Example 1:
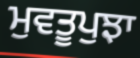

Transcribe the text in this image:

ਮੁਵਤੂਪੁਝਾ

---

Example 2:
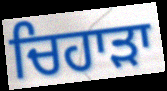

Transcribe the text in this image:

ਚਿਹਾੜਾ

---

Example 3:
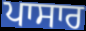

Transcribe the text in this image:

ਪਾਸਾਰ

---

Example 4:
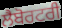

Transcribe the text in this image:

ਲੈਬੋਰਟਰੀ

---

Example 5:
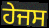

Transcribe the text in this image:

ਹੇਜਸ